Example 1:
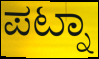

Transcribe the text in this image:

ಪಟ್ನಾ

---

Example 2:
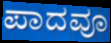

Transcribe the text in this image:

ಪಾದವೂ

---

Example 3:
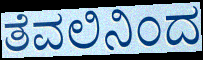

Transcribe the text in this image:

ತೆವಲಿನಿಂದ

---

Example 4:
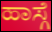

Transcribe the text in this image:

ಹಾಸ್ಗೆ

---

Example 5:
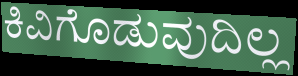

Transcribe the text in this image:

ಕಿವಿಗೊಡುವುದಿಲ್ಲ